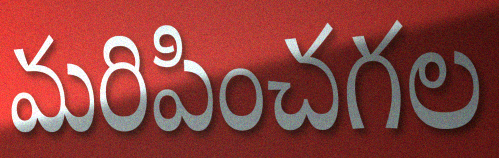
మరిపించగల